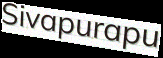
Sivapurapu